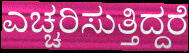
ಎಚ್ಚರಿಸುತ್ತಿದ್ದರೆ